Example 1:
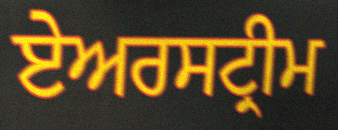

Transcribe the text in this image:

ਏਅਰਸਟ੍ਰੀਮ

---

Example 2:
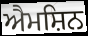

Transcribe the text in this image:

ਐਮਸ਼ਿਨ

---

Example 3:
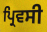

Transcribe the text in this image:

ਪ੍ਰਿਵਸੀ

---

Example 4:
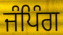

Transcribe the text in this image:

ਜੰਪਿੰਗ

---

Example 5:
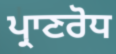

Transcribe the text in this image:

ਪ੍ਰਾਣਰੋਧ